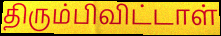
திரும்பிவிட்டாள்